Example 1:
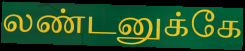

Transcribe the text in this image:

லண்டனுக்கே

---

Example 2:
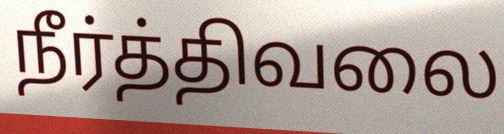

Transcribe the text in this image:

நீர்த்திவலை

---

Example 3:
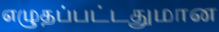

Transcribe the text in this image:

எழுதப்பட்டதுமான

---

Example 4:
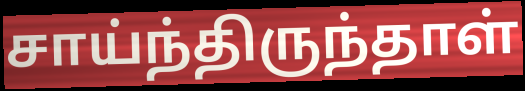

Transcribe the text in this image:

சாய்ந்திருந்தாள்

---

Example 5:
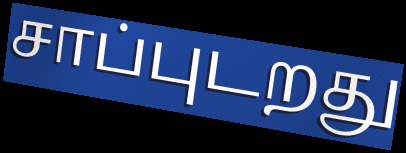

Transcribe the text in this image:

சாப்புடறது